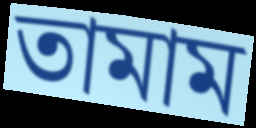
তামাম